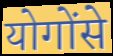
योगोंसे